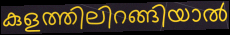
കുളത്തിലിറങ്ങിയാൽ